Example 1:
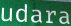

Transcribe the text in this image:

udara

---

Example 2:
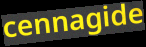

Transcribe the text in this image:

cennagide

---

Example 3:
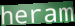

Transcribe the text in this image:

heram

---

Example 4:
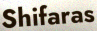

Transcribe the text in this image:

Shifaras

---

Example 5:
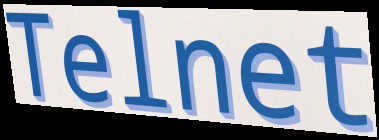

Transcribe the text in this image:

Telnet